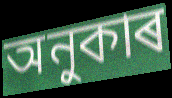
অনুকাৰ